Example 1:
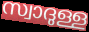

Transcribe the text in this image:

സ്വാദുള്ള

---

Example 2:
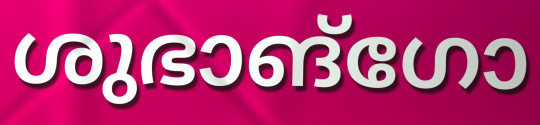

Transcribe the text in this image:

ശുഭാങ്ഗോ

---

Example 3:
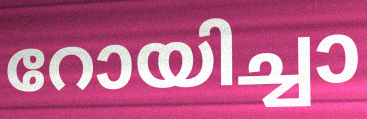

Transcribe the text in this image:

റോയിച്ചാ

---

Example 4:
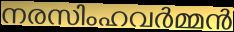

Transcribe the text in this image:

നരസിംഹവർമ്മൻ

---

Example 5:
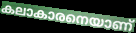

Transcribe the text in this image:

കലാകാരനെയാണ്